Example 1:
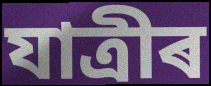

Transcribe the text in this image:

যাত্ৰীৰ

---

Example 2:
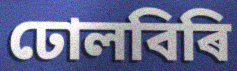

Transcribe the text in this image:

ঢোলবিৰি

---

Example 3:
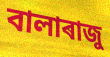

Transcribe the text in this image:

বালাৰাজু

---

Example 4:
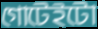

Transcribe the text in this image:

গোটেইটো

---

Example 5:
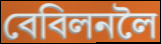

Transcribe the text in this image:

বেবিলনলৈ